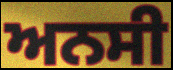
ਅਨਸੀ